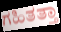
ಗಹಿತತ್ತಾ